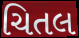
ચિતલ